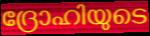
ദ്രോഹിയുടെ